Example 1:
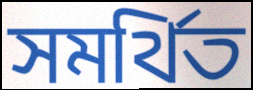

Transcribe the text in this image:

সমৰ্থিত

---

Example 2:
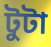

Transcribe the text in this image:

টুটা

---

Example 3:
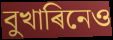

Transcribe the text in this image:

বুখাৰিনেও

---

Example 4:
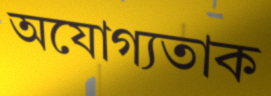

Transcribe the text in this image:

অযোগ্যতাক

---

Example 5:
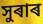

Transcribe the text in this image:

সুৰাৰ